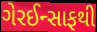
ગેરઈન્સાફથી